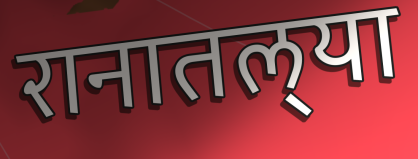
रानातल्या